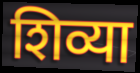
शिव्या